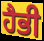
ਹੈਭੀ